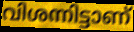
വിശന്നിട്ടാണ്